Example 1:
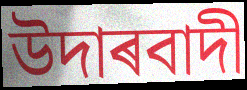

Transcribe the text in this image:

উদাৰবাদী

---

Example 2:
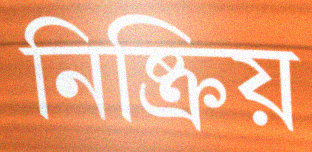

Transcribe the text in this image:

নিষ্ক্ৰিয়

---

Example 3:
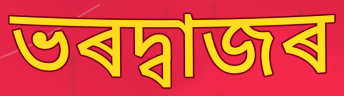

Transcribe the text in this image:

ভৰদ্বাজৰ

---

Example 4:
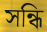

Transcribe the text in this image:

সন্ধি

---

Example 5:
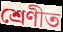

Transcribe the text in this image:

শ্ৰেণীত